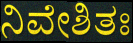
ನಿವೇಶಿತಃ